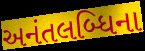
અનંતલબ્ધિના